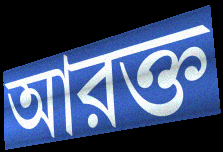
আরক্ত